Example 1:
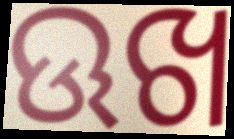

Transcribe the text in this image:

ଊଖ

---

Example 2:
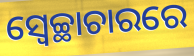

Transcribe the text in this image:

ସ୍ବେଚ୍ଛାଚାରରେ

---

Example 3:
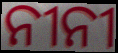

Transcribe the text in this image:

ନୀନୀ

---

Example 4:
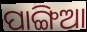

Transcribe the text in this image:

ପାଙ୍ଗିଆ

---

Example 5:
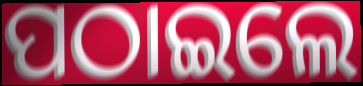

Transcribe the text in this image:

ପଠାଇଲେ